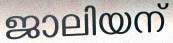
ജാലിയന്